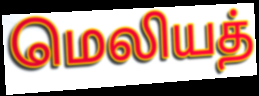
மெலியத்